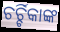
ଚର୍ଚ୍ଚିକାଙ୍କ